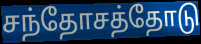
சந்தோசத்தோடு